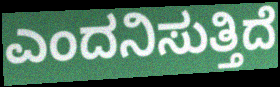
ಎಂದನಿಸುತ್ತಿದೆ